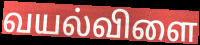
வயல்விளை